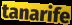
tanarife